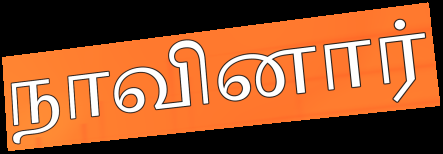
நாவினார்